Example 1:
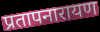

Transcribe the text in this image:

प्रतापनारायण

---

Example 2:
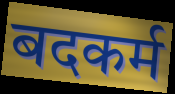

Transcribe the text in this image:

बदकर्म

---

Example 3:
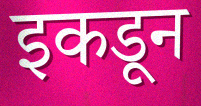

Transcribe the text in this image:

इकडून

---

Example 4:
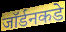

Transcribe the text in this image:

जॉर्डनकडे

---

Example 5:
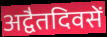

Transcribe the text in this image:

अद्वैतदिवसें